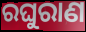
ରଘୁରାଣ